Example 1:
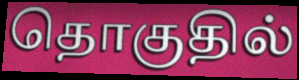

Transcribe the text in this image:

தொகுதில்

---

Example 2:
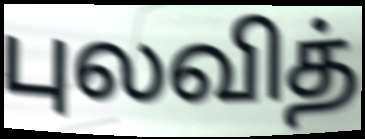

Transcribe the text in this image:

புலவித்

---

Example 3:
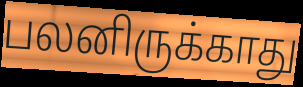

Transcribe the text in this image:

பலனிருக்காது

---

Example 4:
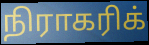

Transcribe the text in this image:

நிராகரிக்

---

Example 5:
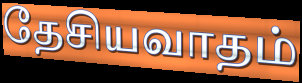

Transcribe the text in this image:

தேசியவாதம்